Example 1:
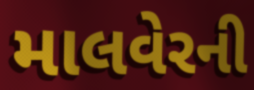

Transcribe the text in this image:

માલવેરની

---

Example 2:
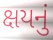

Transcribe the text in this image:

ક્ષયનું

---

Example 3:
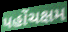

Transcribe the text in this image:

પહોંચક્ષમ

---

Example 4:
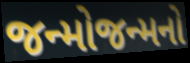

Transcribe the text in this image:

જન્મોજન્મનો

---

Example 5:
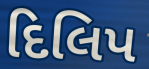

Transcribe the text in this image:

દિલિપ